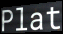
Plat